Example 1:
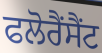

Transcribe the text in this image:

ਫਲੋਰੈਂਸੈਂਟ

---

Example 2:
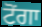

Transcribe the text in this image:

ਟੋਂਗਾ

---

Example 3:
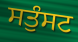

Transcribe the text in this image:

ਸਤੁੰਸਟ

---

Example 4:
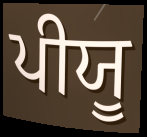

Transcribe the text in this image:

ਪੀਯੂ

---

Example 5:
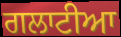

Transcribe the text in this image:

ਗਲਾਟੀਆ